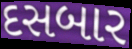
દસબાર